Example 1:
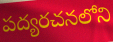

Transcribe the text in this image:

పద్యరచనలోని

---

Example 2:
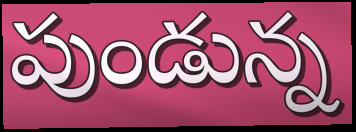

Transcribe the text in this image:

పుండున్న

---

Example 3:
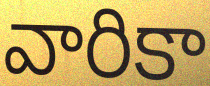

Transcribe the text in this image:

వారికా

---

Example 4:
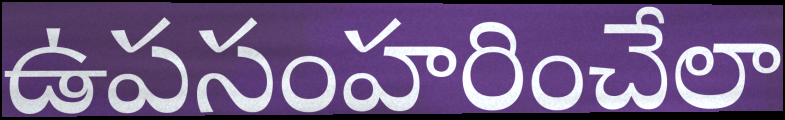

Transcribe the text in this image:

ఉపసంహరించేలా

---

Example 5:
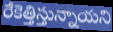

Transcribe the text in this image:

రేకెత్తిస్తున్నాయని